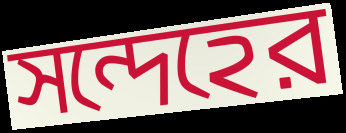
সন্দেহের